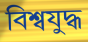
বিশ্বযুদ্ধ